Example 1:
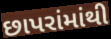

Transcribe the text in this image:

છાપરાંમાંથી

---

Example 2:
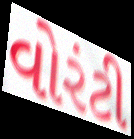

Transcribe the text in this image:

વોરંટી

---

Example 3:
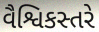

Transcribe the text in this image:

વૈશ્વિકસ્તરે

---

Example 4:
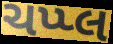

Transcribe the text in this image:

ચપ્પ્લ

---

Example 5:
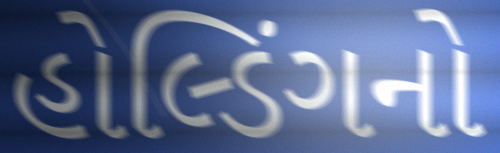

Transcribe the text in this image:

હોલ્ડિંગનો